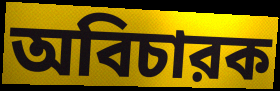
অবিচারক